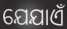
ଯେଯାଏଁ